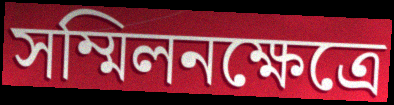
সম্মিলনক্ষেত্রে